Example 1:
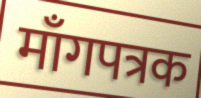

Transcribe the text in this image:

माँगपत्रक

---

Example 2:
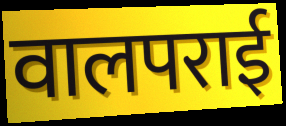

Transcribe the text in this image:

वालपराई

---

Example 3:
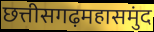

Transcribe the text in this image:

छत्तीसगढ़महासमुंद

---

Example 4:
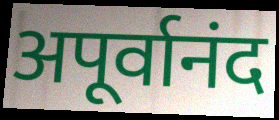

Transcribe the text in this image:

अपूर्वानंद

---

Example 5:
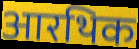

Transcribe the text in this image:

आरथिक